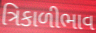
ત્રિકાળીભાવ